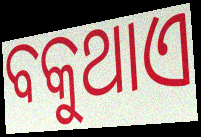
ବକୁଥାଏ